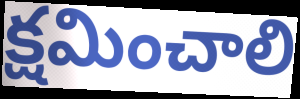
క్షమించాలి